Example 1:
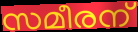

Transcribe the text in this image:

സമീരന്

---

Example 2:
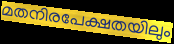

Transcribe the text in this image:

മതനിരപേക്ഷതയിലും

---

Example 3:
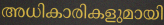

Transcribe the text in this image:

അധികാരികളുമായി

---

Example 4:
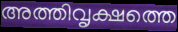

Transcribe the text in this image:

അത്തിവൃക്ഷത്തെ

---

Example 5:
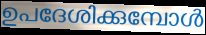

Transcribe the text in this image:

ഉപദേശിക്കുമ്പോൾ